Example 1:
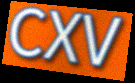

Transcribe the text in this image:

CXV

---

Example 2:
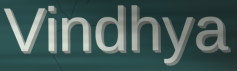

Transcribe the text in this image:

Vindhya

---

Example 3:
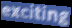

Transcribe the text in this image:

exciting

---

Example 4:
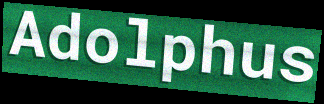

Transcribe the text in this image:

Adolphus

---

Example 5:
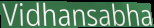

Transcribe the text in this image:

Vidhansabha